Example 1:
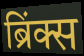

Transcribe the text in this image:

ब्रिंक्स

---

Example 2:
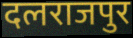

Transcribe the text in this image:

दलराजपुर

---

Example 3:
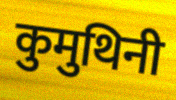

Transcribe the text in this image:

कुमुथिनी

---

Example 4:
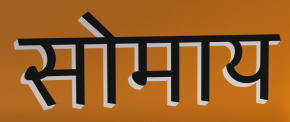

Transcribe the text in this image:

सोमाय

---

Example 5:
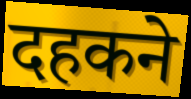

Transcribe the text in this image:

दहकने